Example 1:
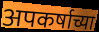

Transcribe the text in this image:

अपकर्षाच्या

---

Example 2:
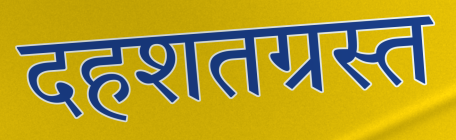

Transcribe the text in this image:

दहशतग्रस्त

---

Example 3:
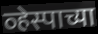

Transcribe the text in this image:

व्हेस्पाच्या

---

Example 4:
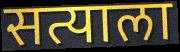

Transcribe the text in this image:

सत्याला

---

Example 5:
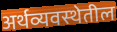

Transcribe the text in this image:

अर्थव्यवस्थेतील